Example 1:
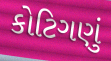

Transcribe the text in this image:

કોટિગણું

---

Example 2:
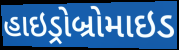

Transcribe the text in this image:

હાઇડ્રોબ્રોમાઇડ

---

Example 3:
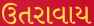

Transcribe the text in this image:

ઉતરાવાય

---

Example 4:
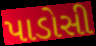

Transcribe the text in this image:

પાડોસી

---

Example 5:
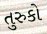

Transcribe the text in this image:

તુરુકો